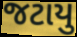
જટાયુ